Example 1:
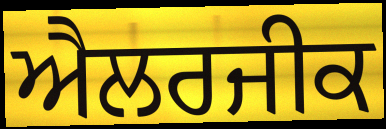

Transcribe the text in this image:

ਐਲਰਜੀਕ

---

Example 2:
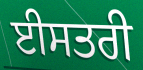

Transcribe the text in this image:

ਈਸਤਰੀ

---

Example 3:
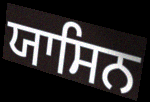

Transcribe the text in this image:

ਯਾਸਿਨ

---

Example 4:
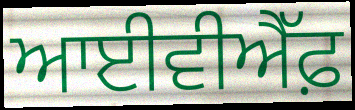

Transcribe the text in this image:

ਆਈਵੀਐੱਫ਼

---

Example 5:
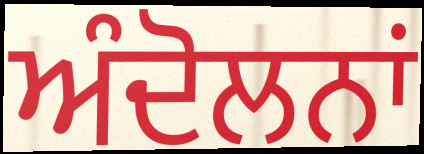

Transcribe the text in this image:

ਅੰਦੋਲਨਾਂ